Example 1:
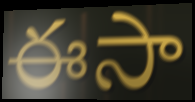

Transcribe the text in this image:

ఈసా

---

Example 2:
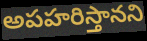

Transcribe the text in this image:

అపహరిస్తానని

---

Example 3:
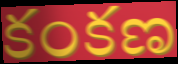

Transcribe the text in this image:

కంకణ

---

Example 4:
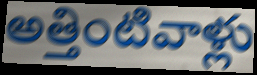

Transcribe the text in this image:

అత్తింటివాళ్లు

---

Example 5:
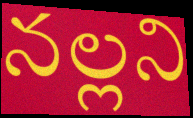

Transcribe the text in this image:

నల్లని